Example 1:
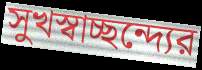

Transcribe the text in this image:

সুখস্বাচ্ছন্দ্যের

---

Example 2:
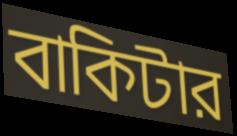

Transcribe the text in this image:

বাকিটার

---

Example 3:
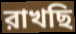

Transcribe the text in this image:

রাখছি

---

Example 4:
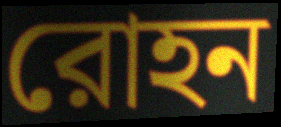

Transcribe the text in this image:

রোহন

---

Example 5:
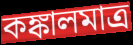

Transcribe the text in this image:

কঙ্কালমাত্র